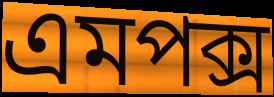
এমপক্স